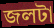
জলটা